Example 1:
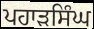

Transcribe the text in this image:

ਪਹਾੜਸਿੰਘ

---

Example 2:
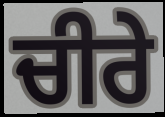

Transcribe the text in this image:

ਚੀਰੇ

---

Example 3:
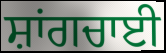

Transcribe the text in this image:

ਸ਼ਾਂਗਚਾਈ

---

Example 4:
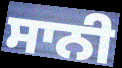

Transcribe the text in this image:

ਸਾਨੀ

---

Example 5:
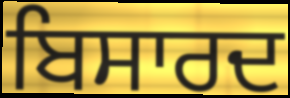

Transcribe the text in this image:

ਬਿਸਾਰਦ